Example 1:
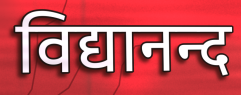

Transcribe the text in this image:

विद्यानन्द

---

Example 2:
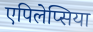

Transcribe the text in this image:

एपिलेप्सिया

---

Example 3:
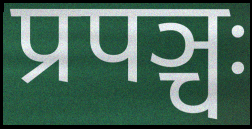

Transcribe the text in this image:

प्रपञ्चः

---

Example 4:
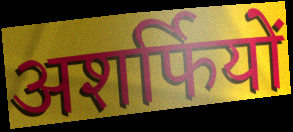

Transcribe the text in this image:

अशर्फियों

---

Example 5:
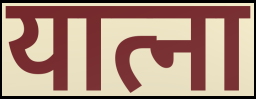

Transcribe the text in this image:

यात्ना